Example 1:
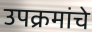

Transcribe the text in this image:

उपक्रमांचे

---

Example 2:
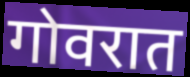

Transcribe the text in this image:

गोवरात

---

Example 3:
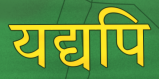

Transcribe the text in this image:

यद्यपि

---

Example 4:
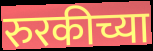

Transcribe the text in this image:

रुरकीच्या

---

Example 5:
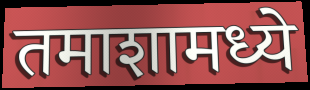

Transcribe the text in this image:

तमाशामध्ये